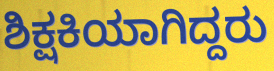
ಶಿಕ್ಷಕಿಯಾಗಿದ್ದರು